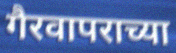
गैरवापराच्या